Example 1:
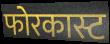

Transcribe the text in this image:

फोरकास्ट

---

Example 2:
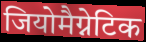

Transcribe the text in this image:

जियोमैग्नेटिक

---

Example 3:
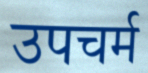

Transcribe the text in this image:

उपचर्म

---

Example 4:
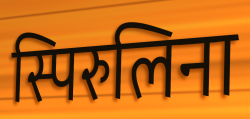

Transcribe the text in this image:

स्पिरुलिना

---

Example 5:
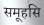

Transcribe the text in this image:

समूहसि